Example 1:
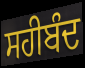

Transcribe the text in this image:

ਸਹੀਬੰਦ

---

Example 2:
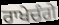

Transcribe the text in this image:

ਰਾਖੇਚੰਗੇ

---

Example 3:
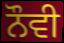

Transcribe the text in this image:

ਨੌਵੀ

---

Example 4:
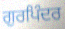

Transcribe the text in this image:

ਗੁਰਪਿੰਦਰ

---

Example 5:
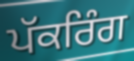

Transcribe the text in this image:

ਪੱਕਰਿੰਗ